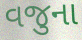
વજુના